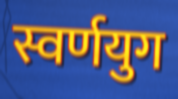
स्वर्णयुग